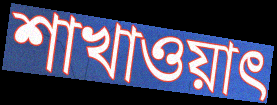
শাখাওয়াৎ